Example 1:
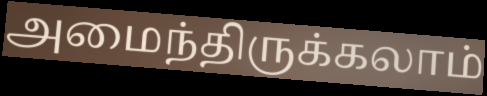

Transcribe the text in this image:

அமைந்திருக்கலாம்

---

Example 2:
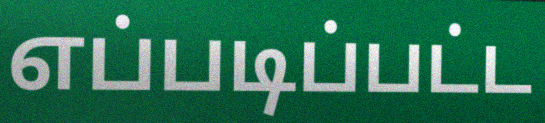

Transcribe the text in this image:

எப்படிப்பட்ட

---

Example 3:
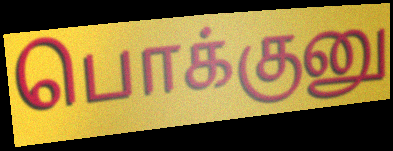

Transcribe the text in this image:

பொக்குனு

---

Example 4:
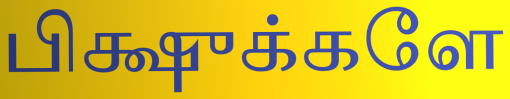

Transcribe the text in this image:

பிக்ஷுக்களே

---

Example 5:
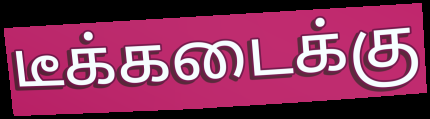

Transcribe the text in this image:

டீக்கடைக்கு